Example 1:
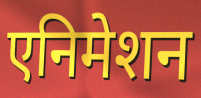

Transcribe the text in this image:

एनिमेशन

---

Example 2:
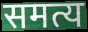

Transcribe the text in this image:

समत्य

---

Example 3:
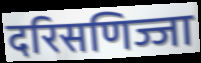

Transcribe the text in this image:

दरिसणिज्जा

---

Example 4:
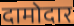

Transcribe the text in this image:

दामोदार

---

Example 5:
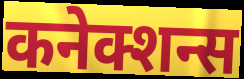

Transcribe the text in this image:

कनेक्शन्स